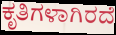
ಕೃತಿಗಳಾಗಿರದೆ